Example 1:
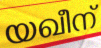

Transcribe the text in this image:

യഖീന്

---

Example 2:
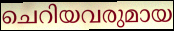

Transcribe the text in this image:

ചെറിയവരുമായ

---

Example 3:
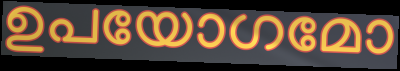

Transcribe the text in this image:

ഉപയോഗമോ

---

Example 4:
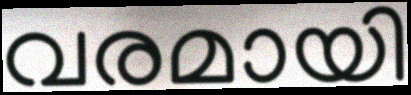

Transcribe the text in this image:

വരമായി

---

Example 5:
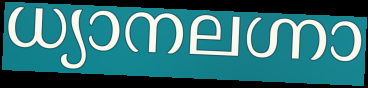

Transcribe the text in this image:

ധ്യാനലഗ്നാ